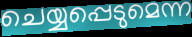
ചെയ്യപ്പെടുമെന്ന